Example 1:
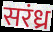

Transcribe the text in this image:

सरंध्र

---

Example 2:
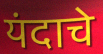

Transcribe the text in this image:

यंदाचे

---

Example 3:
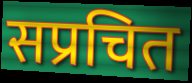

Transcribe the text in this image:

सप्रचित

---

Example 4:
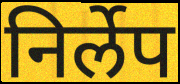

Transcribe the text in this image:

निर्लेप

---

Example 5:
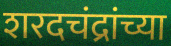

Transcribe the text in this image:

शरदचंद्रांच्या